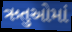
ઋતુઓમાં